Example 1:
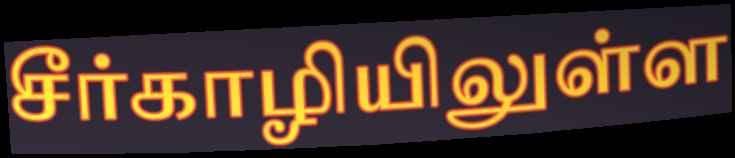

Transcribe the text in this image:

சீர்காழியிலுள்ள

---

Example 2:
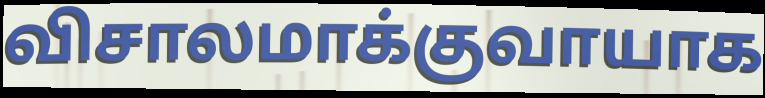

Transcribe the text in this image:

விசாலமாக்குவாயாக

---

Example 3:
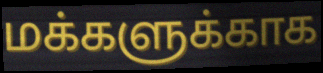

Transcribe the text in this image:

மக்களுக்காக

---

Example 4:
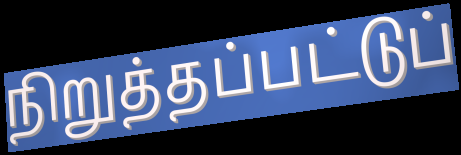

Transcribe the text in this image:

நிறுத்தப்பட்டுப்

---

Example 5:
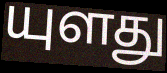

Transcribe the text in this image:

யுளது